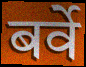
बर्वे